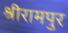
श्रीरामपुर